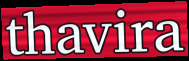
thavira